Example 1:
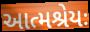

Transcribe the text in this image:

આત્મશ્રેયઃ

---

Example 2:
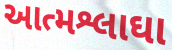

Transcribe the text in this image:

આત્મશ્લાઘા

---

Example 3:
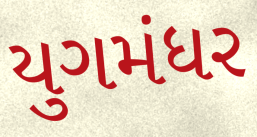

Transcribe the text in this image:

યુગમંધર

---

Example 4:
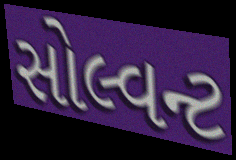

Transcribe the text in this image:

સોલ્વન્ટ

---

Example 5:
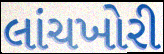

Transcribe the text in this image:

લાંચખોરી